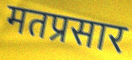
मतप्रसार